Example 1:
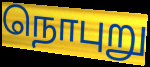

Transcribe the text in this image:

நொபுறு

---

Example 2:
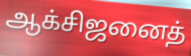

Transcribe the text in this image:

ஆக்சிஜனைத்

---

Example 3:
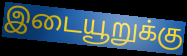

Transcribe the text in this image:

இடையூறுக்கு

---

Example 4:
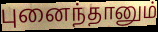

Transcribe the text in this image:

புனைந்தானும்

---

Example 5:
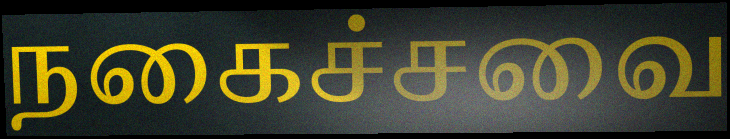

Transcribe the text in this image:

நகைச்சவை